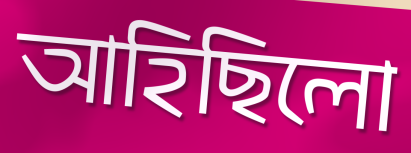
আহিছিলো